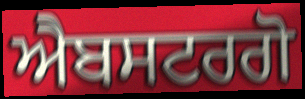
ਐਬਸਟਰਗੋ